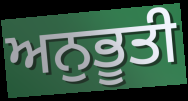
ਅਨੁਭੂਤੀ